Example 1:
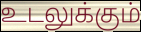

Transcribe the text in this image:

உடலுக்கும்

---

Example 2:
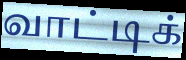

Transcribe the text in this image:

வாட்டிக்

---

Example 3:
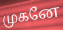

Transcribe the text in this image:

முகனே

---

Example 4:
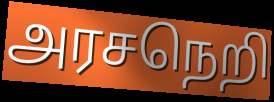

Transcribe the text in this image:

அரசநெறி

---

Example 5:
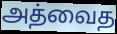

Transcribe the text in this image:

அத்வைத